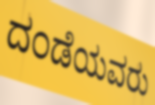
ದಂಡೆಯವರು